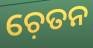
ଚ଼େତନ